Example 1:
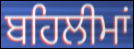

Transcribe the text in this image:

ਬਹਿਲੀਮਾਂ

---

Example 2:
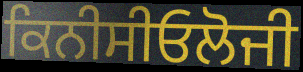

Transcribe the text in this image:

ਕਿਨੀਸੀਓਲੋਜੀ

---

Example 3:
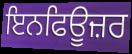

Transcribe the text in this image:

ਇਨਫਿਊਜ਼ਰ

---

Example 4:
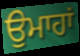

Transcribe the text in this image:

ਉਮਾਹਾਂ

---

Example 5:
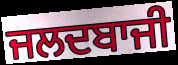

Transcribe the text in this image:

ਜਲਦਬਾਜੀ